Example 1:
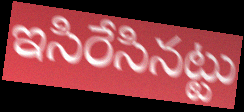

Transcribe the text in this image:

ఇసిరేసినట్టు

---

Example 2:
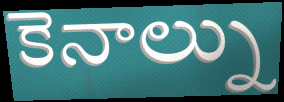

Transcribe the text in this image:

కెనాల్ను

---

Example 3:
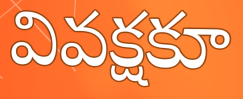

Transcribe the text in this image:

వివక్షకూ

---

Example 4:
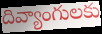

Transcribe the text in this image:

దివ్యాంగులకు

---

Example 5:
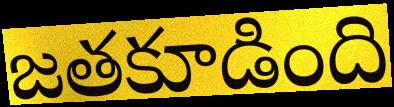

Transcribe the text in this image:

జతకూడింది